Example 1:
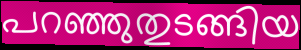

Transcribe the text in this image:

പറഞ്ഞുതുടങ്ങിയ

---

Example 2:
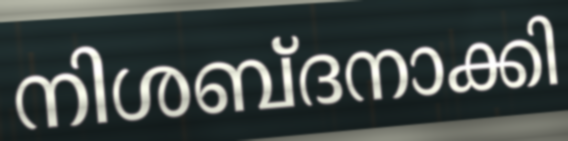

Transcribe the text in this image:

നിശബ്ദനാക്കി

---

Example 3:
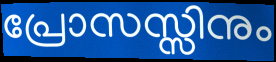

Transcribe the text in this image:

പ്രോസസ്സിനും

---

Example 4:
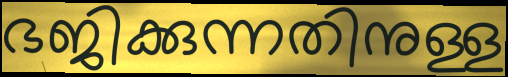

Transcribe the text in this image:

ഭജിക്കുന്നതിനുള്ള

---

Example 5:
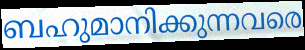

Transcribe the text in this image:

ബഹുമാനിക്കുന്നവരെ